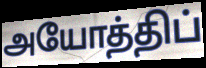
அயோத்திப்